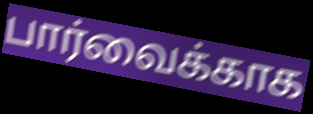
பார்வைக்காக